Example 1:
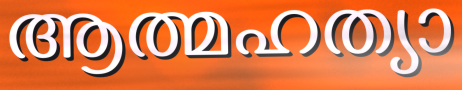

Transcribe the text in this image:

ആത്മഹത്യാ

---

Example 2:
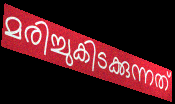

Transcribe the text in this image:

മരിച്ചുകിടക്കുന്നത്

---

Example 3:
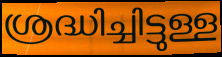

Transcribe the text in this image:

ശ്രദ്ധിച്ചിട്ടുള്ള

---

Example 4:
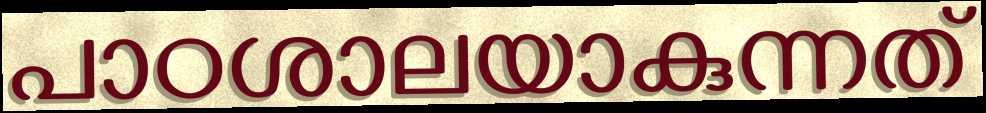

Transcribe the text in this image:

പാഠശാലയാകുന്നത്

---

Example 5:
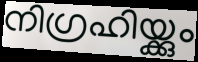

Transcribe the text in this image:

നിഗ്രഹിയ്ക്കും